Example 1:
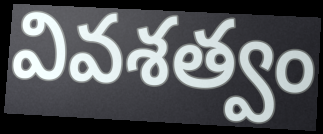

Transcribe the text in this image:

వివశత్వం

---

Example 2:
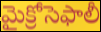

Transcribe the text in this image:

మైక్రోసెఫాలీ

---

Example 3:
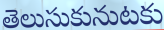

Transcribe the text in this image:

తెలుసుకునుటకు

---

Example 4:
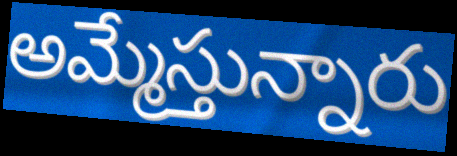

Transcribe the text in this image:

అమ్మేస్తున్నారు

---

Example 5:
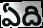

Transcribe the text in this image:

ఏది